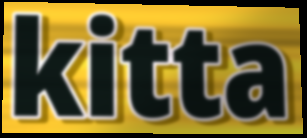
kitta